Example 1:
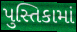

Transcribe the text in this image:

પુસ્તિકામાં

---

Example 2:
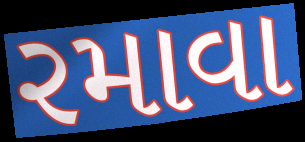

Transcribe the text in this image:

રમાવા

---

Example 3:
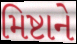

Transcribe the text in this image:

મિષ્ટાને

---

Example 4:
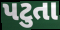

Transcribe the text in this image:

પટુતા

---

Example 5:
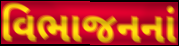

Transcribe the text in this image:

વિભાજનનાં